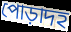
পোড়াদহ